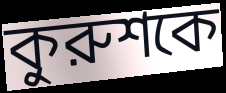
কুরুশকে